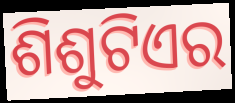
ଶିଶୁଟିଏର